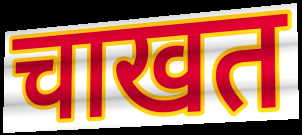
चाखत